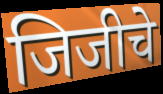
जिजीचे